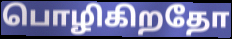
பொழிகிறதோ